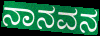
ನಾನವನ